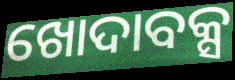
ଖୋଦାବକ୍ସ